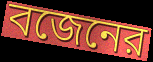
বজেনের